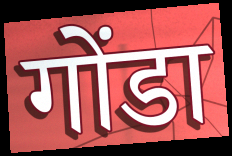
गोंडा